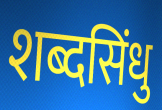
शब्दसिंधु